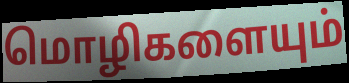
மொழிகளையும்